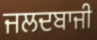
ਜਲਦਬਾਜੀ